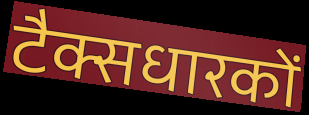
टैक्सधारकों